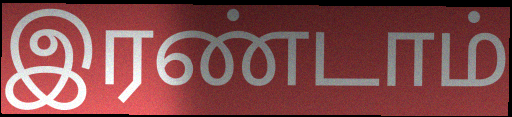
இரண்டாம்